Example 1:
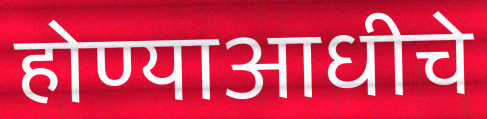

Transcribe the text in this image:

होण्याआधीचे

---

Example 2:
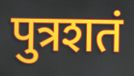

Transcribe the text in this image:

पुत्रशतं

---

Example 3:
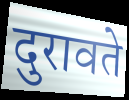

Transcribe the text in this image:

दुरावते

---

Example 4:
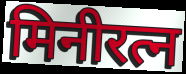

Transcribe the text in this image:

मिनीरत्न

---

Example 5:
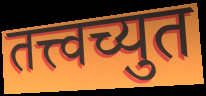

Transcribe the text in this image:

तत्त्वच्युत